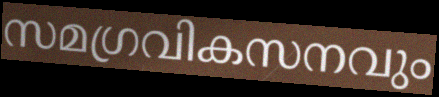
സമഗ്രവികസനവും